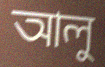
আলু